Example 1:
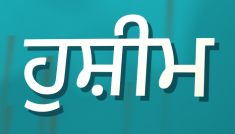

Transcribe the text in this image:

ਹੁਸ਼ੀਮ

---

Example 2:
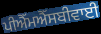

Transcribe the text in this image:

ਪੀਐੱਮਐੱਸਬੀਵਾਈ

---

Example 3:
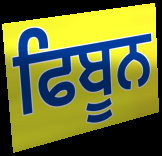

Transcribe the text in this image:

ਫਿਬੂਨ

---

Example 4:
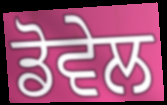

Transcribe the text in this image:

ਡੋਵੇਲ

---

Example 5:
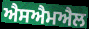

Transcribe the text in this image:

ਐਸਐਮਐਲ